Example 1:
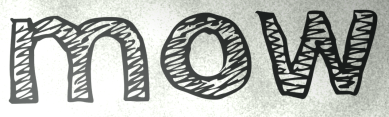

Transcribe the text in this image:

mow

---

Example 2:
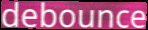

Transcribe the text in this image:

debounce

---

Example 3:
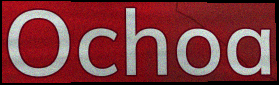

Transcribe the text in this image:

Ochoa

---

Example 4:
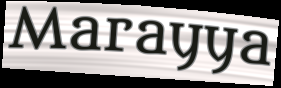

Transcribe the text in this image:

Marayya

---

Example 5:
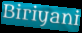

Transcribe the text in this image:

Biriyani